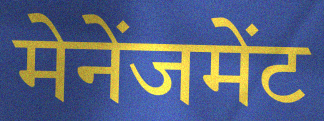
मेनेंजमेंट